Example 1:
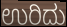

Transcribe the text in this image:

ಉರಿದು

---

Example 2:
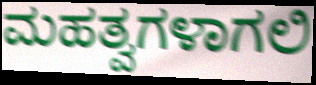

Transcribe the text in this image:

ಮಹತ್ವಗಳಾಗಲಿ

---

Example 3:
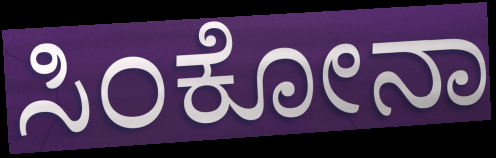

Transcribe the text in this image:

ಸಿಂಕೋನಾ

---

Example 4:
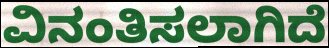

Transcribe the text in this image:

ವಿನಂತಿಸಲಾಗಿದೆ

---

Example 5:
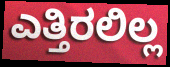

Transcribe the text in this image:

ಎತ್ತಿರಲಿಲ್ಲ